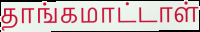
தாங்கமாட்டாள்